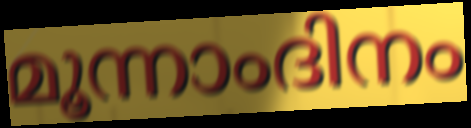
മൂന്നാംദിനം